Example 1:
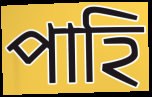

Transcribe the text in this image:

পাহি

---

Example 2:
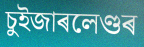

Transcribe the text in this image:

চুইজাৰলেণ্ডৰ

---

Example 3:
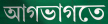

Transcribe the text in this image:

আগভাগতে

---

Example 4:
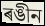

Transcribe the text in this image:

ৰঙীন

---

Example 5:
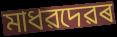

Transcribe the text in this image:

মাধৱদেৱৰ